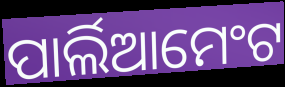
ପାର୍ଲିଆମେଂଟ